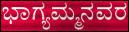
ಭಾಗ್ಯಮ್ಮನವರ